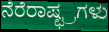
ನೆರೆರಾಷ್ಟ್ರಗಳು